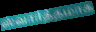
ஸ்வார்த்தமாக